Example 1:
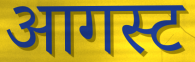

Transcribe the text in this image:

आगस्ट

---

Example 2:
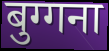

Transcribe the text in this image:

बुग्गना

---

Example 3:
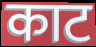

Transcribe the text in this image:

काट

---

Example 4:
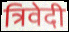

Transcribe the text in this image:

त्रिवेदी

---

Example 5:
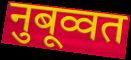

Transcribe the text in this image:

नुबूव्वत